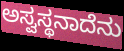
ಅಸ್ವಸ್ಥನಾದೆನು